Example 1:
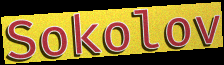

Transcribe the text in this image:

Sokolov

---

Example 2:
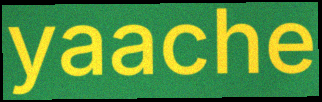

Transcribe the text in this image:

yaache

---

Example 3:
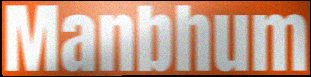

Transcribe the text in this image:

Manbhum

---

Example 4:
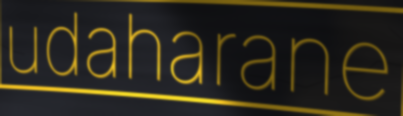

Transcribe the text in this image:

udaharane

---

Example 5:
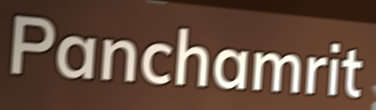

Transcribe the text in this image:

Panchamrit